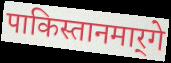
पाकिस्तानमार्गे